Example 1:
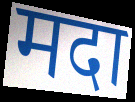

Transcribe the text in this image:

मदा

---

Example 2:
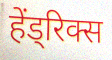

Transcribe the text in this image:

हेंड्रिक्स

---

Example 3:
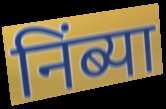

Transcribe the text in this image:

निंब्या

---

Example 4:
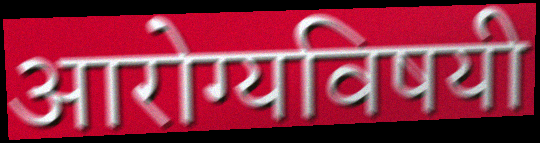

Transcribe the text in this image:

आरोग्यविषयी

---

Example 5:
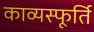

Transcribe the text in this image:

काव्यस्फूर्ति